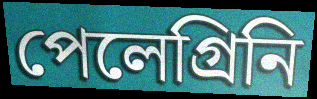
পেলেগ্রিনি